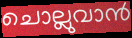
ചൊല്ലുവാൻ